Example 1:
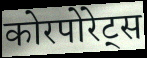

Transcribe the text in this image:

कोरपोरेट्स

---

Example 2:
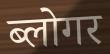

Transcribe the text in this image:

ब्लोगर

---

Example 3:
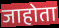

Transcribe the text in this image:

जाहोता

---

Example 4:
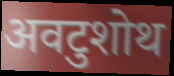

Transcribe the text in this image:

अवटुशोथ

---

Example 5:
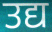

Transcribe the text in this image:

उद्य